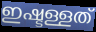
ഇഷ്ടള്ളത്